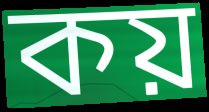
কয়